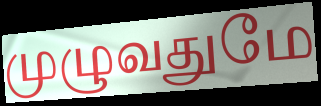
முழுவதுமே